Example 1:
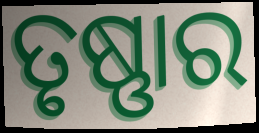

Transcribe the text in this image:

ତୃଷ୍ଣାର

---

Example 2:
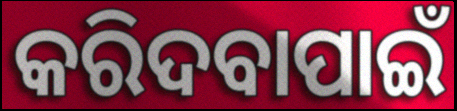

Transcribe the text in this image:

କରିଦବାପାଇଁ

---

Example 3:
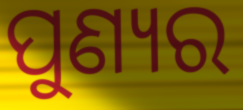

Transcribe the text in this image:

ପୁଣ୍ୟର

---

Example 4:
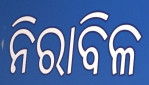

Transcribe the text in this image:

ନିରାବିଳ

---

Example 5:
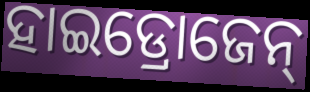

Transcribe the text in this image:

ହାଇଡ୍ରୋଜେନ୍